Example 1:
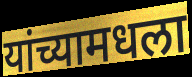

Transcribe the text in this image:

यांच्यामधला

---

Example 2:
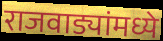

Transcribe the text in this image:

राजवाड्यांमध्ये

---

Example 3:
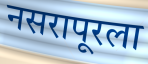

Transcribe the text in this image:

नसरापूरला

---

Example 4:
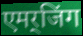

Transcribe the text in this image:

एमर्जिंग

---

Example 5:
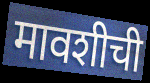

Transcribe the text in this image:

मावशीची